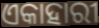
ଏକାହାରୀ